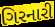
ગિરનારી